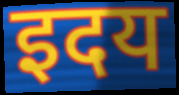
इदय